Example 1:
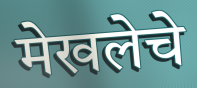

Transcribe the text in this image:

मेखलेचे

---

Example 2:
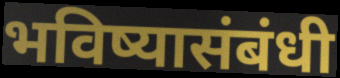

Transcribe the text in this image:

भविष्यासंबंधी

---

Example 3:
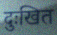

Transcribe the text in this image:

दुःखित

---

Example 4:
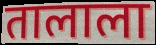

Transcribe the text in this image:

तालाला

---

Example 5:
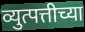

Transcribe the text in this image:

व्युत्पत्तीच्या